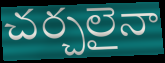
చర్చలైనా